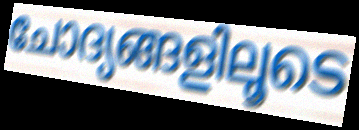
ചോദ്യങ്ങളിലൂടെ